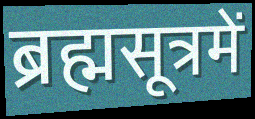
ब्रह्मसूत्रमें